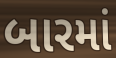
બારમાં